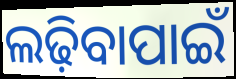
ଲଢ଼ିବାପାଇଁ